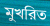
মুখরিত